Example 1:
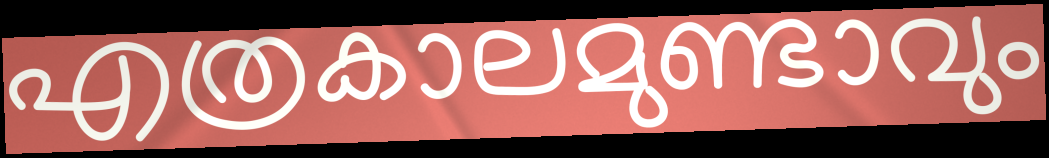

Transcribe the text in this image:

എത്രകാലമുണ്ടാവും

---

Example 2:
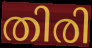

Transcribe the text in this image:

തിരി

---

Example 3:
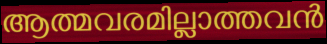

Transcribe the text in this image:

ആത്മവരമില്ലാത്തവൻ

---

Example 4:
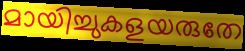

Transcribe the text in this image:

മായിച്ചുകളയരുതേ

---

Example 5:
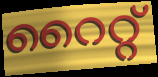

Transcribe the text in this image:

റൈറ്റ്